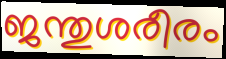
ജന്തുശരീരം